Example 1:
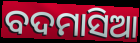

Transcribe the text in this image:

ବଦମାସିଆ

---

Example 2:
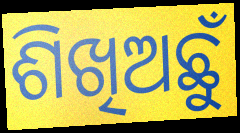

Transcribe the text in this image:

ଶିଖିଅଛୁଁ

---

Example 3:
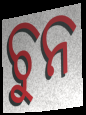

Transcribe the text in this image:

ଚୁନ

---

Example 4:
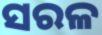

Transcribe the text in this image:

ସରଳ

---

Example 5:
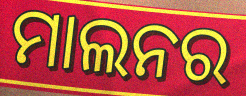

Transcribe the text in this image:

ମାଲନର